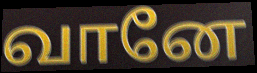
வானே